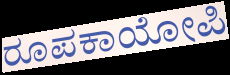
ರೂಪಕಾಯೋಪಿ